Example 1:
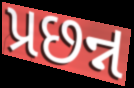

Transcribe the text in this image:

પ્રછન્ન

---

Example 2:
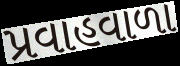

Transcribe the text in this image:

પ્રવાહવાળા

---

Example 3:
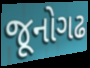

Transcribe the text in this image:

જૂનોગઢ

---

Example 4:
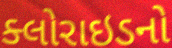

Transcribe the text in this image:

ક્લોરાઇડનો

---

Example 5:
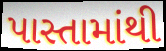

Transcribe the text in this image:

પાસ્તામાંથી